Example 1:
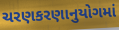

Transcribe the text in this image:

ચરણકરણાનુયોગમાં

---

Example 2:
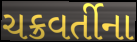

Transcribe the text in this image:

ચક્રવર્તીના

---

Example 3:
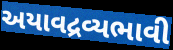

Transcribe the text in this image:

અયાવદ્રવ્યભાવી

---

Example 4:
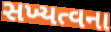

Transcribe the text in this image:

સખ્યત્વના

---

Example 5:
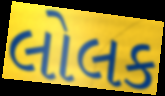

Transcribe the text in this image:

લોલક